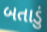
બતાડું